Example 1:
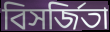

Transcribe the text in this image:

বিসর্জিতা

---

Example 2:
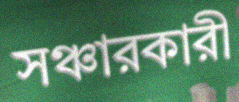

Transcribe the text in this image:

সঞ্চারকারী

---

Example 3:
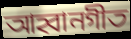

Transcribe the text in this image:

আহ্বানগীত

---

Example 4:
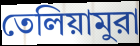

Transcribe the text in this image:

তেলিয়ামুরা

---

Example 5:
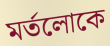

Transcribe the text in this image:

মর্তলোকে